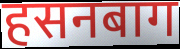
हसनबाग